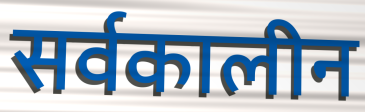
सर्वकालीन